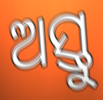
ଅସ୍ତୁ